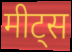
मीट्स